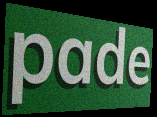
pade